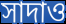
সাদাও